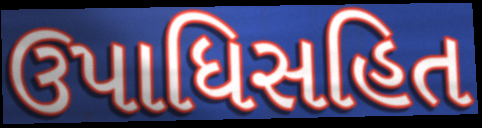
ઉપાધિસહિત